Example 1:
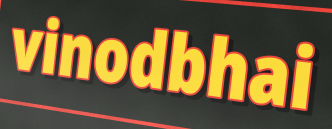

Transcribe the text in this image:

vinodbhai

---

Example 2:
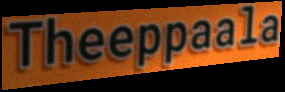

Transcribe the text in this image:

Theeppaala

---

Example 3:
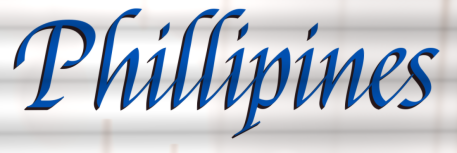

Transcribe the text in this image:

Phillipines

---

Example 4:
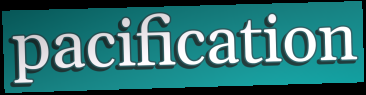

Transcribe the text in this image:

pacification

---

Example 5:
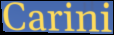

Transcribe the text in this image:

Carini